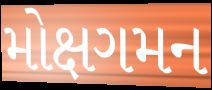
મોક્ષગમન